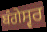
ਬੰਗੇਸ੍ਵਰ